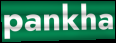
pankha